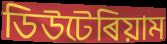
ডিউটেৰিয়াম